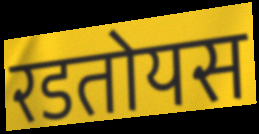
रडतोयस